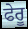
ਫੇਰੂ